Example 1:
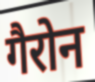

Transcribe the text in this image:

गैरोन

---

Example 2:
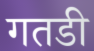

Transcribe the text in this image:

गतडी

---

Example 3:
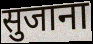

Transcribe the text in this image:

सुजाना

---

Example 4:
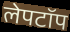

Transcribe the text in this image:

लेपटॉप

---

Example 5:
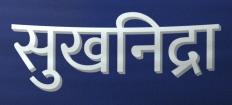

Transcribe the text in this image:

सुखनिद्रा